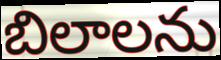
బిలాలను